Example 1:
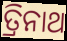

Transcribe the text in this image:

ତ୍ରିନାଥ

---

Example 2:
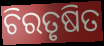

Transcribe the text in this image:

ଚିରତୃଷିତ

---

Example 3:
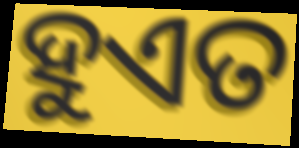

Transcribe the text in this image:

ହୁଏତ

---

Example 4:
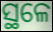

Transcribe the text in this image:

ସ୍ଥଳେ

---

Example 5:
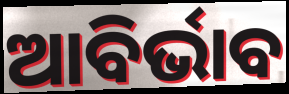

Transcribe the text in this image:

ଆବିର୍ଭାବ